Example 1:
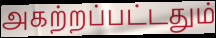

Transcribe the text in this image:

அகற்றப்பட்டதும்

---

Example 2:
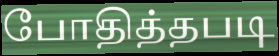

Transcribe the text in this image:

போதித்தபடி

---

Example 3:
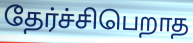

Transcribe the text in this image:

தேர்ச்சிபெறாத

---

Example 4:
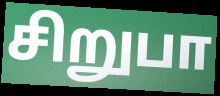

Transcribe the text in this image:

சிறுபா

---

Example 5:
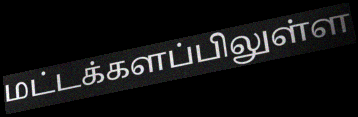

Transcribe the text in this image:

மட்டக்களப்பிலுள்ள